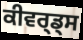
ਕੀਵਰ੍ਡ੍ਸ